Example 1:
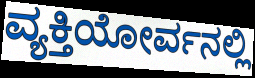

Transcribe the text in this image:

ವ್ಯಕ್ತಿಯೋರ್ವನಲ್ಲಿ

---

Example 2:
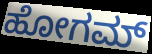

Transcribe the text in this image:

ಹೋಗಮ್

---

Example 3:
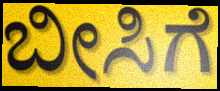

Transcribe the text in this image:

ಬೀಸಿಗೆ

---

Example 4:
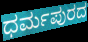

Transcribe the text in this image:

ಧರ್ಮಪುರದ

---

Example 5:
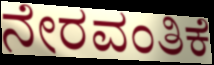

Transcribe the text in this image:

ನೇರವಂತಿಕೆ